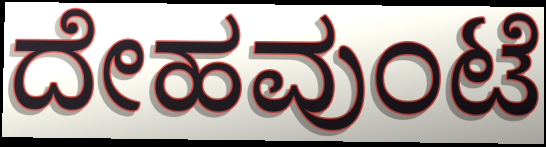
ದೇಹವುಂಟೆ